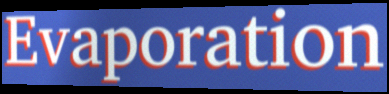
Evaporation